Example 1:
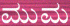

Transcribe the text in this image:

ಮುಮ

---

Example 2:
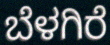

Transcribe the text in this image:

ಬೆಳಗಿರೆ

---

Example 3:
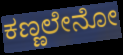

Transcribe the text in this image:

ಕಣ್ಣಲೇನೋ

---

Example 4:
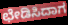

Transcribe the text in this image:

ಛೇಡಿಸಿದಾಗ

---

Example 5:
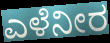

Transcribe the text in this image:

ಎಳೆನೀರ